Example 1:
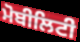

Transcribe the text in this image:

ਮੋਬੀਲਿਟੀ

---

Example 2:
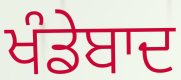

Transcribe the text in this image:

ਖੰਡੇਬਾਦ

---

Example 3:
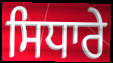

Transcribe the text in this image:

ਸਿਧਾਰੇ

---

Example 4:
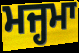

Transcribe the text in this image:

ਮਜ੍ਹਮਾ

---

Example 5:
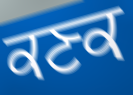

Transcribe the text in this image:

ਕਣਕ